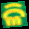
ଳି